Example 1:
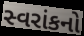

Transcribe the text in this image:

સ્વરાંકનો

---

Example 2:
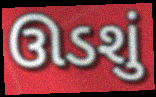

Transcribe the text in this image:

ઊડશું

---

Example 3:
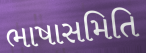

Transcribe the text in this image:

ભાષાસમિતિ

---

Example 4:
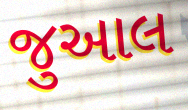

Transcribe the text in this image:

જુઆલ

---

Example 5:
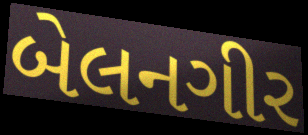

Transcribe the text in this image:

બેલનગીર